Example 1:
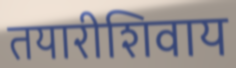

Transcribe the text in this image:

तयारीशिवाय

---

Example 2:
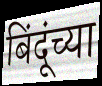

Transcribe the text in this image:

बिंदूंच्या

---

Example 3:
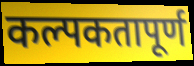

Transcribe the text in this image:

कल्पकतापूर्ण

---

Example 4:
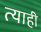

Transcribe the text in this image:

त्याही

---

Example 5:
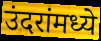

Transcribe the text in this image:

उंदरांमध्ये